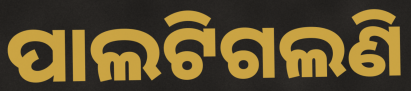
ପାଲଟିଗଲଣି